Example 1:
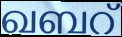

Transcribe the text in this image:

ഖബറ്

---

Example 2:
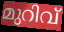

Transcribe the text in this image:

മുറിവ്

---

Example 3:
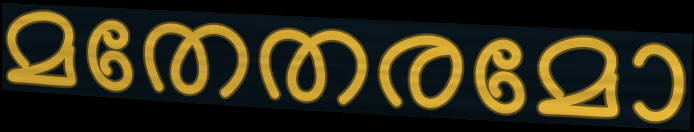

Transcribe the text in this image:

മതേതരമോ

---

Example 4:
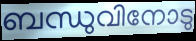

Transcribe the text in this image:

ബന്ധുവിനോടു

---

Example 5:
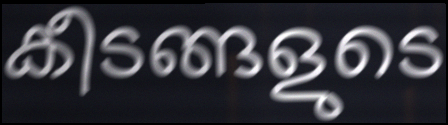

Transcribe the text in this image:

കീടങ്ങളുടെ